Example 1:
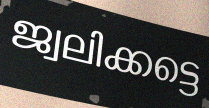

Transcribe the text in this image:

ജ്വലിക്കട്ടെ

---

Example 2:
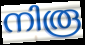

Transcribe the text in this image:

നിരൂ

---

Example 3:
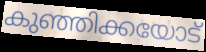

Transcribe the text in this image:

കുഞ്ഞിക്കയോട്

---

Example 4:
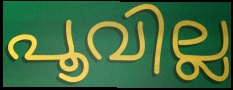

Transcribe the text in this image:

പൂവില്ല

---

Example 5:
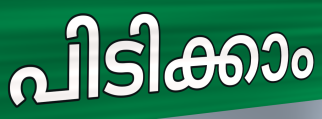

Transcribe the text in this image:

പിടിക്കാം